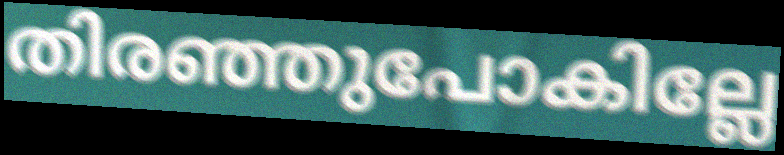
തിരഞ്ഞുപോകില്ലേ